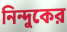
নিন্দুকের